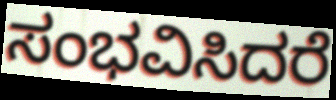
ಸಂಭವಿಸಿದರೆ